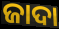
ଜାଦା